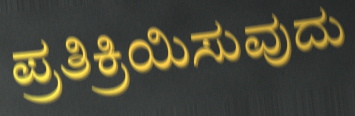
ಪ್ರತಿಕ್ರಿಯಿಸುವುದು